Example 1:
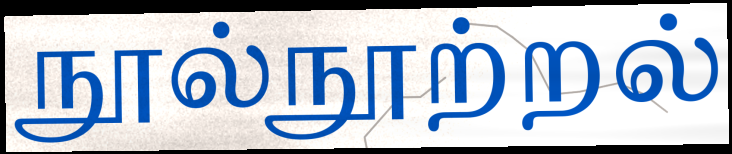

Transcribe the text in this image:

நூல்நூற்றல்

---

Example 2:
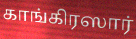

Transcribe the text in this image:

காங்கிரஸார்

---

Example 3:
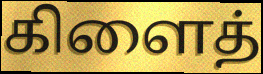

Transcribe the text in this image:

கிளைத்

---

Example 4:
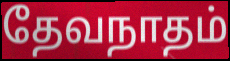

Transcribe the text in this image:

தேவநாதம்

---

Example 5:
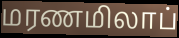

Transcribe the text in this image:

மரணமிலாப்